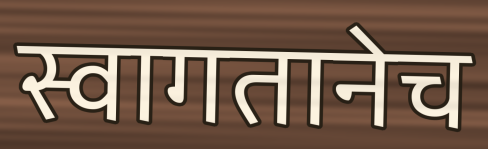
स्वागतानेच